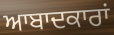
ਆਬਾਦਕਾਰਾਂ